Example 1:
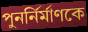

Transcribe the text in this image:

পুনর্নির্মাণকে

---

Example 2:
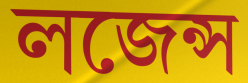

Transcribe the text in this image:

লজেন্স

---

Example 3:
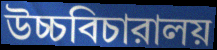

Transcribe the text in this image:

উচ্চবিচারালয়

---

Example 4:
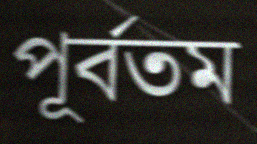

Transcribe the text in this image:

পূর্বতম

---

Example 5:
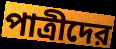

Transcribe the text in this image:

পাত্রীদের